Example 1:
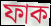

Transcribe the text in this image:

ফাক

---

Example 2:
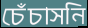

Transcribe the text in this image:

চেঁচাসনি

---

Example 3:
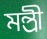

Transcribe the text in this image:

মন্ত্রী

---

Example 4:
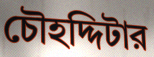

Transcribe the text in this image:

চৌহদ্দিটার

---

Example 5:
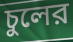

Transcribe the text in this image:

চুলের